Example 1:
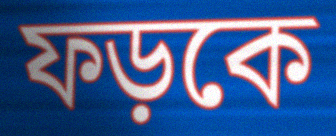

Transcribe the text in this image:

ফড়কে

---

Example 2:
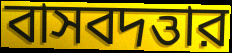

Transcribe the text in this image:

বাসবদত্তার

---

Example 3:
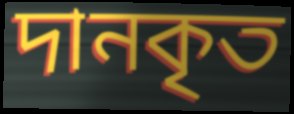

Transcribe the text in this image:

দানকৃত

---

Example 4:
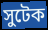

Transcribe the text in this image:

সুটেক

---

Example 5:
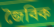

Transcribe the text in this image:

জৈবিক